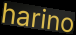
harino